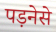
पड़नेसे